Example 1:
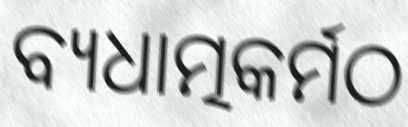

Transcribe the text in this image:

ବ୍ୟଧାତ୍ମକର୍ମଠ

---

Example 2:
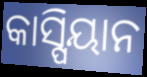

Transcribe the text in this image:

କାସ୍ପିୟାନ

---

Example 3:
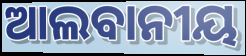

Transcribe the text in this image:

ଆଲବାନୀୟ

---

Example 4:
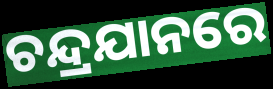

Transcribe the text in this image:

ଚନ୍ଦ୍ରଯାନରେ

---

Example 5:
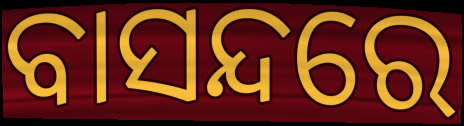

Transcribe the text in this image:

ବାସନ୍ଦରେ